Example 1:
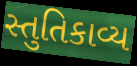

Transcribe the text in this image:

સ્તુતિકાવ્ય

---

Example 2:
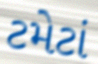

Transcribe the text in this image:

ટમેટાં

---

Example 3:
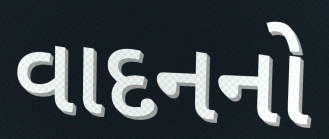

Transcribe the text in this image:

વાદનનો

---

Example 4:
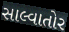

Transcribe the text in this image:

સાલ્વાતોર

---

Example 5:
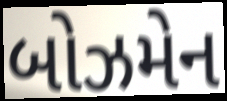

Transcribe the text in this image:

બોઝમેન